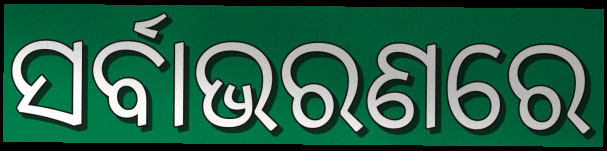
ସର୍ବାଭରଣରେ